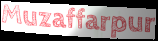
Muzaffarpur